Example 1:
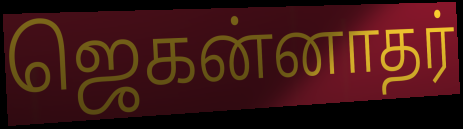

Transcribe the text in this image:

ஜெகன்னாதர்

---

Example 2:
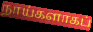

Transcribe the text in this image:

நாய்களாகப்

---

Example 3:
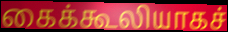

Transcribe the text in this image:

கைக்கூலியாகச்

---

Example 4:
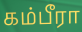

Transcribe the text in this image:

கம்பீரா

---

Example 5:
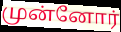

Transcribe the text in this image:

முன்னோர்